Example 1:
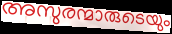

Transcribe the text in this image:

അസുരന്മാരുടെയും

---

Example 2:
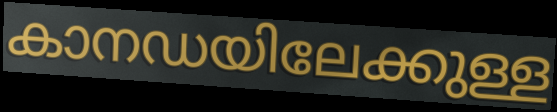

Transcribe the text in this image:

കാനഡയിലേക്കുള്ള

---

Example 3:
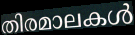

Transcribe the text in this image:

തിരമാലകൾ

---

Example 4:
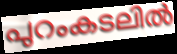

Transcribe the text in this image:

പുറംകടലിൽ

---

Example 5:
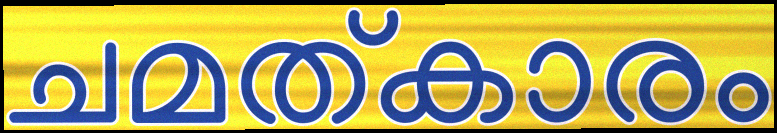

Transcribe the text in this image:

ചമത്കാരം